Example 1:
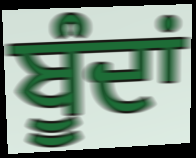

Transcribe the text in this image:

ਬੂੰਦਾਂ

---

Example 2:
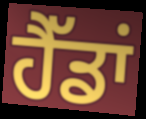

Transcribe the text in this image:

ਹੈੱਡਾਂ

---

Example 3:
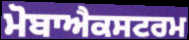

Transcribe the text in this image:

ਮੋਬਾਐਕਸਟਰਮ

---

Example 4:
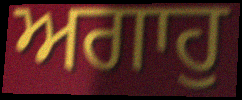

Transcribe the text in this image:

ਅਗਾਹੁ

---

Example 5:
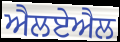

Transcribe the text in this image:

ਐਲਏਐਲ